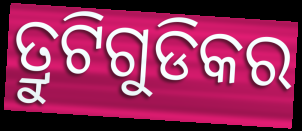
ତ୍ରୁଟିଗୁଡିକର